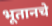
भूतानचे